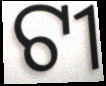
ଟୀ